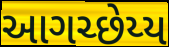
આગચ્છેય્ય